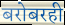
बरोबरही